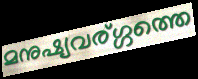
മനുഷ്യവര്ഗ്ഗത്തെ